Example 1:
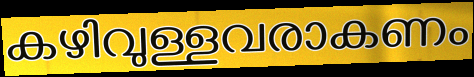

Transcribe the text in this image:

കഴിവുള്ളവരാകണം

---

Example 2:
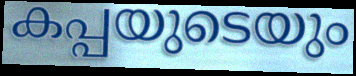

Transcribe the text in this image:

കപ്പയുടെയും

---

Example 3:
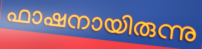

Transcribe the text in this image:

ഫാഷനായിരുന്നു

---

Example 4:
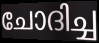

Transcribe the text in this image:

ചോദിച്ച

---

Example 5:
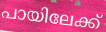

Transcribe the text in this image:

പായിലേക്ക്